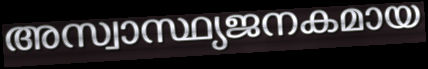
അസ്വാസ്ഥ്യജനകമായ